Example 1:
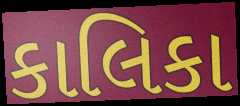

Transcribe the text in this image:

કાલિકા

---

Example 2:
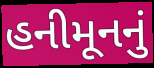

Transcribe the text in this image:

હનીમૂનનું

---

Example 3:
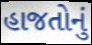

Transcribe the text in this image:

હાજતોનું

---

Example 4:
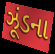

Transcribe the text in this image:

ઝૂંડના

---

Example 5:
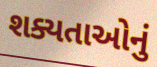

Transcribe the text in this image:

શક્યતાઓનું